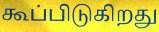
கூப்பிடுகிறது